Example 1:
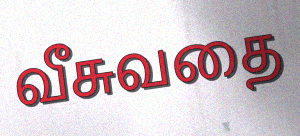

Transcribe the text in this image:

வீசுவதை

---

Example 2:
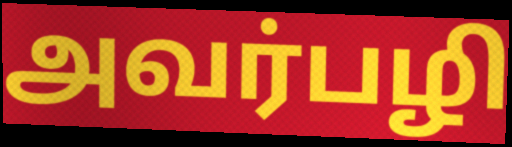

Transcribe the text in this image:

அவர்பழி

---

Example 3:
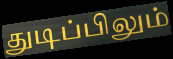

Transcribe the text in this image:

துடிப்பிலும்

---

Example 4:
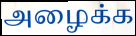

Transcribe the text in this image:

அழைக்க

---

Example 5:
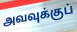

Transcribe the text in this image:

அவவுக்குப்